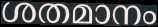
ശതമാനം